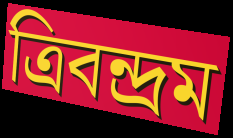
ত্রিবন্দ্রম